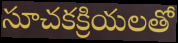
సూచకక్రియలతో